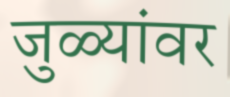
जुळ्यांवर